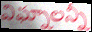
విఘ్నాలన్నీ